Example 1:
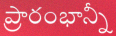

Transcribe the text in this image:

ప్రారంభాన్నీ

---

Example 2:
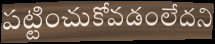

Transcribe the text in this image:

పట్టించుకోవడంలేదని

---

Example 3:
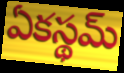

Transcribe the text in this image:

ఏకస్థమ్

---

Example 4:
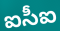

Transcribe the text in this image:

ఐసీఐ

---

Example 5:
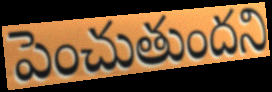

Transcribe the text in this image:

పెంచుతుందని